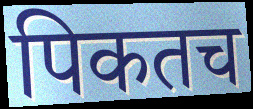
पिकतच